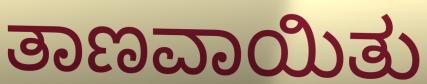
ತಾಣವಾಯಿತು